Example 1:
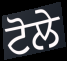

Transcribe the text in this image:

ਟੋਲੇ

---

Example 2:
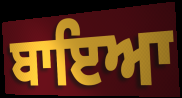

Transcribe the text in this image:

ਬਾਇਆ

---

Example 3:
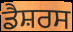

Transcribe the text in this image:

ਡੈਸ਼ਰਸ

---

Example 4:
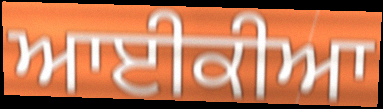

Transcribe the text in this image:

ਆਈਕੀਆ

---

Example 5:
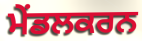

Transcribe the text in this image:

ਮੇਂਡਲਕਰਨ